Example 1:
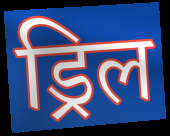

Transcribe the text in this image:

ड्रिल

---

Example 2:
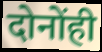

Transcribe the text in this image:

दोनोंही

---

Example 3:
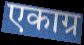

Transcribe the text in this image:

एकाग्र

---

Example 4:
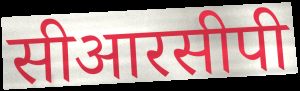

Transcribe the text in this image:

सीआरसीपी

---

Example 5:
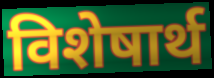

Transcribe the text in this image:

विशेषार्थ